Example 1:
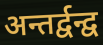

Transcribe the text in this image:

अन्तर्द्वन्द्व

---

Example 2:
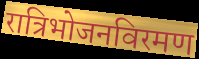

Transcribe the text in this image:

रात्रिभोजनविरमण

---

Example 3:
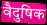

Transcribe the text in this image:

वैदुषिक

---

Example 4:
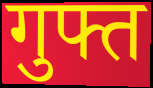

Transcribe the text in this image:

गुफ्त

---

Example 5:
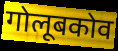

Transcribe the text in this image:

गोलूबकोव